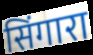
सिंगारा